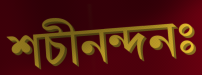
শচীনন্দনঃ